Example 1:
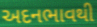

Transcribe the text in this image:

અદનભાવથી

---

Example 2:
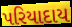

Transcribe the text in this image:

પરિયાદાય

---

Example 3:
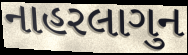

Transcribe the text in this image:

નાહરલાગુન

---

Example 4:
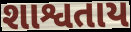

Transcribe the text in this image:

શાશ્વતાય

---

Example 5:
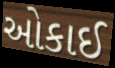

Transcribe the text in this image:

ઓકાઈ